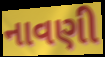
નાવણી